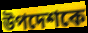
উপদেশকে